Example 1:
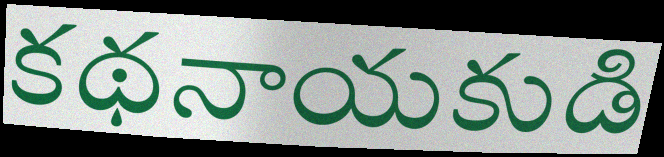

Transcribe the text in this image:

కథనాయకుడి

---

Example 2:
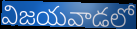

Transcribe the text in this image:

విజయవాడలో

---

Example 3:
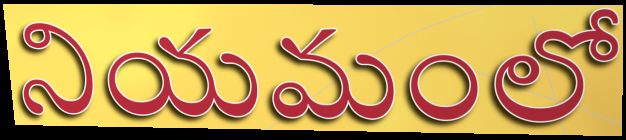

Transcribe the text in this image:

నియమంలో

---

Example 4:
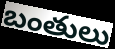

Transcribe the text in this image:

బంతులు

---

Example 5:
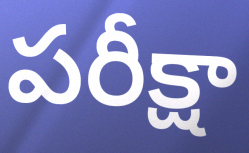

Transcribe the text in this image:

పరీక్షా